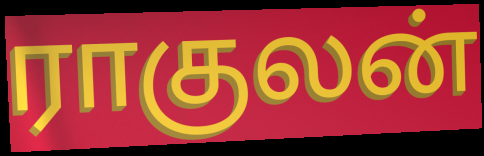
ராகுலன்